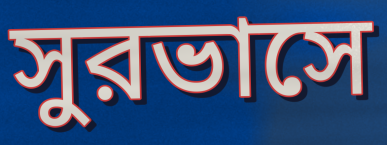
সুরভাসে